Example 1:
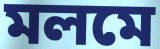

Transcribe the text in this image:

মলমে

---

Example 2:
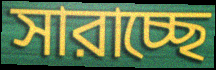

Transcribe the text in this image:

সারাচ্ছে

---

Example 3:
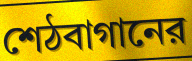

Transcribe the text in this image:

শেঠবাগানের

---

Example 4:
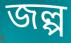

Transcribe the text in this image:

জল্প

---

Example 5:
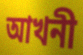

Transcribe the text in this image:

আখনী